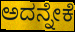
ಅದನ್ನೇಕೆ